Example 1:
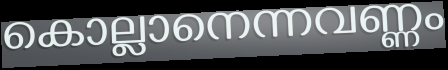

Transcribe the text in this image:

കൊല്ലാനെന്നവണ്ണം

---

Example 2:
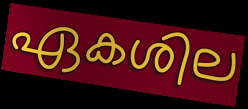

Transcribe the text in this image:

ഏകശില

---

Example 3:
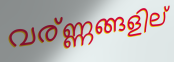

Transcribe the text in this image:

വര്ണ്ണങ്ങളില്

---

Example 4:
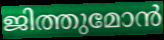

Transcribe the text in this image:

ജിത്തുമോൻ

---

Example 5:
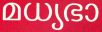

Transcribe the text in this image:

മധ്യഭാ